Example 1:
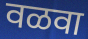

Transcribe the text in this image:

वळवा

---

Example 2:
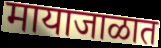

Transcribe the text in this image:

मायाजाळात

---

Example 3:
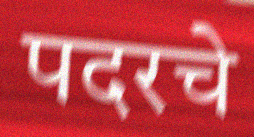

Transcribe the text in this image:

पदरचे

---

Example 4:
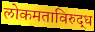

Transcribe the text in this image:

लोकमताविरुद्ध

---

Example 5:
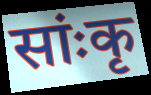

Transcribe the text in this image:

सांःकृ